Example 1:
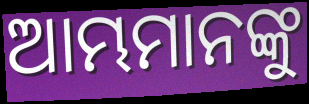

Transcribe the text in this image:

ଆମ୍ଭମାନଙ୍କୁ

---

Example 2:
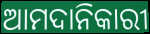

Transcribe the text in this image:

ଆମଦାନିକାରୀ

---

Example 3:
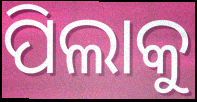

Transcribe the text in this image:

ପିଲାକୁ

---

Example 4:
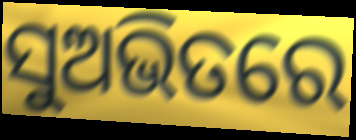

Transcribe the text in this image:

ସୁଅଭିତରେ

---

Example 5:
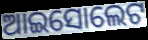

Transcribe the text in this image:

ଆଇସୋଲେଟ